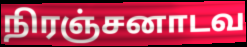
நிரஞ்சனாடவ